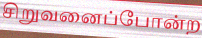
சிறுவனைப்போன்ற